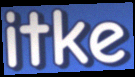
itke